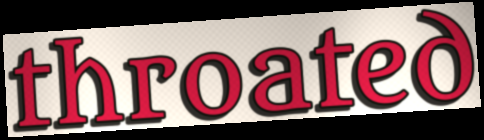
throated